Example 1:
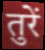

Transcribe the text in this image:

तुरें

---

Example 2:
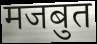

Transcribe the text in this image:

मजबुत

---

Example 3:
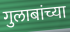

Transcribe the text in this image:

गुलाबांच्या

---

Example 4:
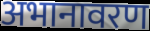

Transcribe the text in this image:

अभानावरण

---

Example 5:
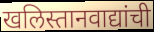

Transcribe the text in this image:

खलिस्तानवाद्यांची